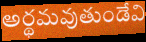
అర్థమవుతుండేవి